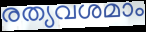
രത്യവശമാം